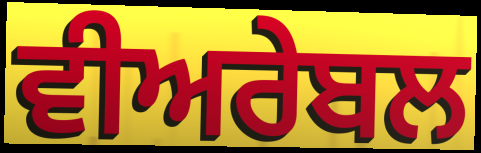
ਵੀਅਰੇਬਲ